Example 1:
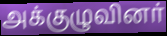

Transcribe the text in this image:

அக்குழுவினர்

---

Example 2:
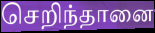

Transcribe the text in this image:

செறிந்தானை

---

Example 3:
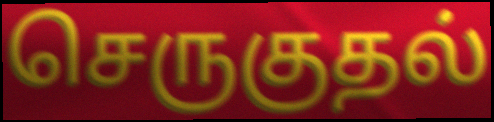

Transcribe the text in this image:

செருகுதல்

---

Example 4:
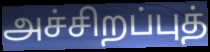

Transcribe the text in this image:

அச்சிறப்புத்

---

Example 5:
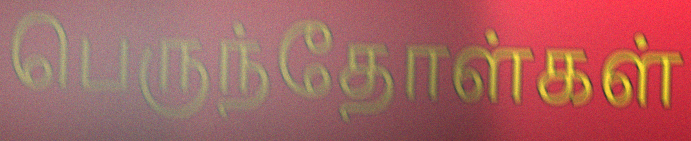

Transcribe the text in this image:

பெருந்தோள்கள்